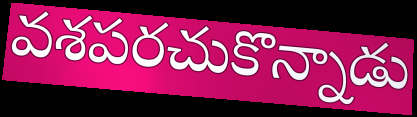
వశపరచుకొన్నాడు